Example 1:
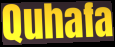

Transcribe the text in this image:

Quhafa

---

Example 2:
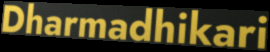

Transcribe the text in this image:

Dharmadhikari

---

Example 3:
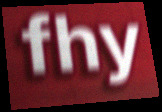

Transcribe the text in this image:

fhy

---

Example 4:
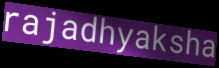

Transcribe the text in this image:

rajadhyaksha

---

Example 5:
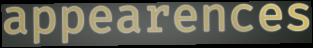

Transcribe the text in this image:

appearences